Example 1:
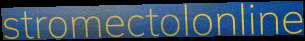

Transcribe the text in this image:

stromectolonline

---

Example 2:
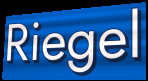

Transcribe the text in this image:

Riegel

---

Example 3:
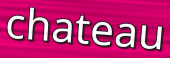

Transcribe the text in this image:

chateau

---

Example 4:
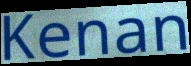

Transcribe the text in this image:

Kenan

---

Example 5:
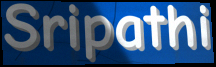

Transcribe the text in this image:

Sripathi